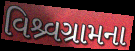
વિશ્ર્વગ્રામના